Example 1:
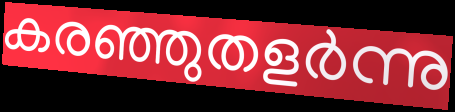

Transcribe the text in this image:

കരഞ്ഞുതളർന്നു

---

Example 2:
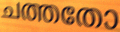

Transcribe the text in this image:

ചത്തതോ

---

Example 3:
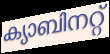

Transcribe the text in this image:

ക്യാബിനറ്റ്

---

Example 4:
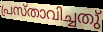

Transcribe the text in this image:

പ്രസ്താവിച്ചതു്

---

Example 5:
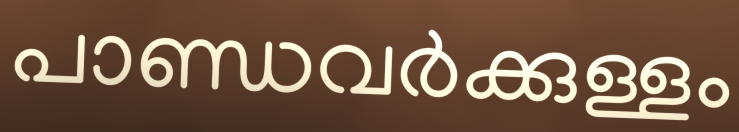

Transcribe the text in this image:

പാണ്ഡവർക്കുള്ളം